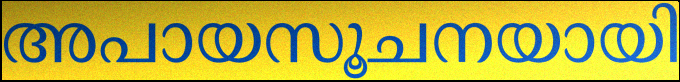
അപായസൂചനയായി